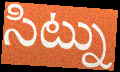
సిట్ను